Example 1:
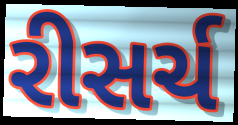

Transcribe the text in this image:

રીસર્ચ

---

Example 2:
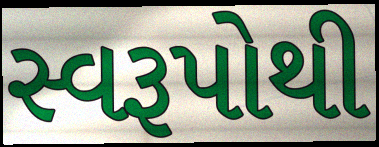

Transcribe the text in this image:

સ્વરૂપોથી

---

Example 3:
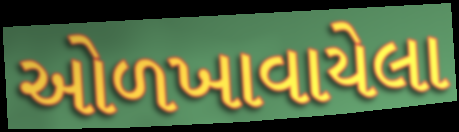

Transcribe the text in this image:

ઓળખાવાયેલા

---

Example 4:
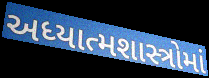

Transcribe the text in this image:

અધ્યાત્મશાસ્ત્રોમાં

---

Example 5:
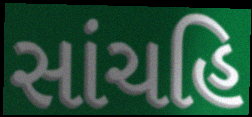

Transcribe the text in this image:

સાંચહિ